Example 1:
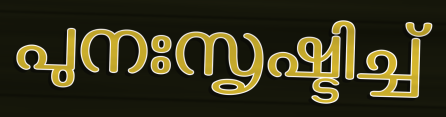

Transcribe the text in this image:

പുനഃസൃഷ്ടിച്ച്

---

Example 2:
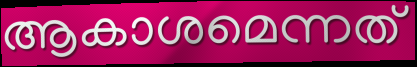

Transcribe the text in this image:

ആകാശമെന്നത്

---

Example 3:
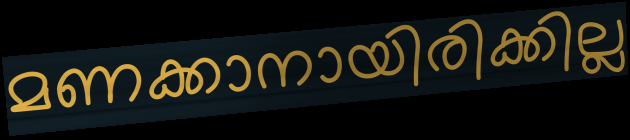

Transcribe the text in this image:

മണക്കാനായിരിക്കില്ല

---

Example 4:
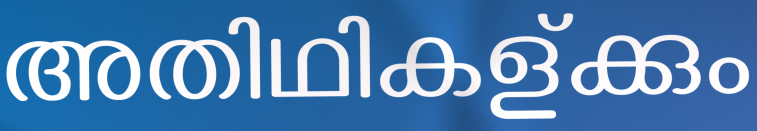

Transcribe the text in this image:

അതിഥികള്ക്കും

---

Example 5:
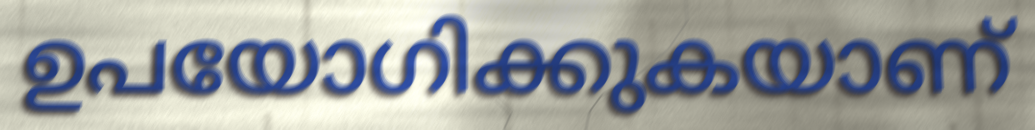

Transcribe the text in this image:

ഉപയോഗിക്കുകയാണ്